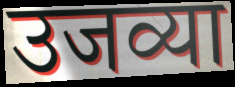
उजव्या